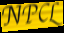
NPCL